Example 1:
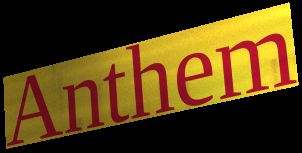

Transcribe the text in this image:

Anthem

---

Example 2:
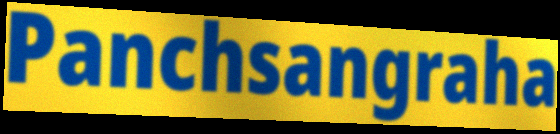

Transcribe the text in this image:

Panchsangraha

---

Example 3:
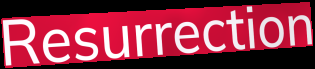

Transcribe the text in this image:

Resurrection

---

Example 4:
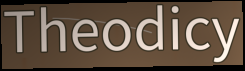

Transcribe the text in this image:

Theodicy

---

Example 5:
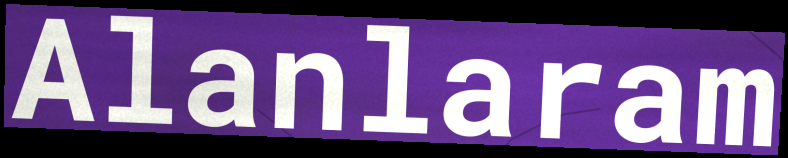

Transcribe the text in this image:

Alanlaram